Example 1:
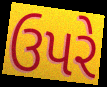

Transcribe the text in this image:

ઉપરે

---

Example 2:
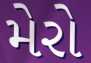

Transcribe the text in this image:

મેરો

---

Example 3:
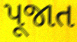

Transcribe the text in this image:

પૂજાત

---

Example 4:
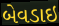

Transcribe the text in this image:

બેવડાઇ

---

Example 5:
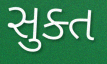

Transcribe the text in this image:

સુક્ત